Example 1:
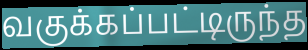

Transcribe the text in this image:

வகுக்கப்பட்டிருந்த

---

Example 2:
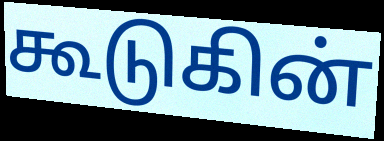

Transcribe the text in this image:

கூடுகின்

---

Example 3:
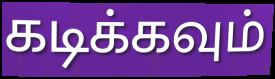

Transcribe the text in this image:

கடிக்கவும்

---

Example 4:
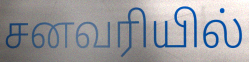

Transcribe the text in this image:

சனவரியில்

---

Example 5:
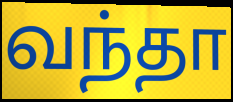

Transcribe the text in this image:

வந்தா